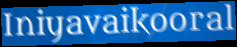
Iniyavaikooral